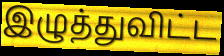
இழுத்துவிட்ட